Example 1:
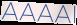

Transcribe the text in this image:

AAAAI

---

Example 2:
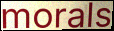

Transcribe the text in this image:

morals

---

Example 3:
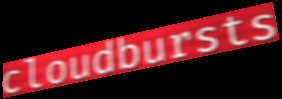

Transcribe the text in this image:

cloudbursts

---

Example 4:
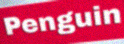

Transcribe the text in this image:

Penguin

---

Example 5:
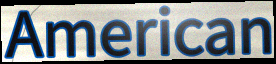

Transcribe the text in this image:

American